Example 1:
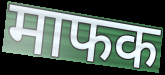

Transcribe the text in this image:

माफक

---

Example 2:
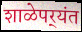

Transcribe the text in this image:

शाळेपर्यंत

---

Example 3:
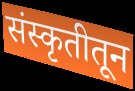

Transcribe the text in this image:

संस्कृतीतून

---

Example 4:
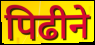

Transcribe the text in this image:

पिढीने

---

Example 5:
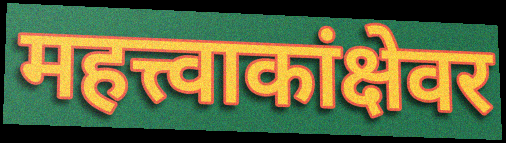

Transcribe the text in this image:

महत्त्वाकांक्षेवर